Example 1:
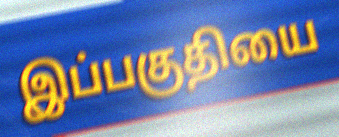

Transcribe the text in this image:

இப்பகுதியை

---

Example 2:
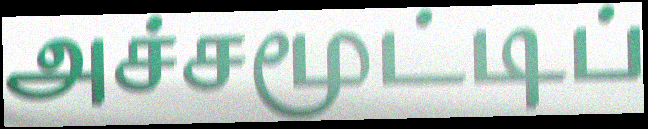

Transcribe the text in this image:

அச்சமூட்டிப்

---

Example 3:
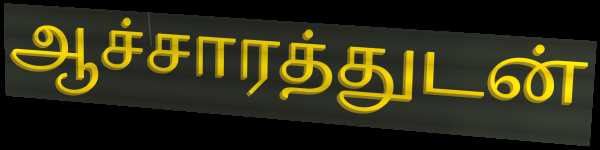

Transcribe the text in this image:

ஆச்சாரத்துடன்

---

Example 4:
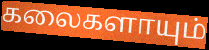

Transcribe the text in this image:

கலைகளாயும்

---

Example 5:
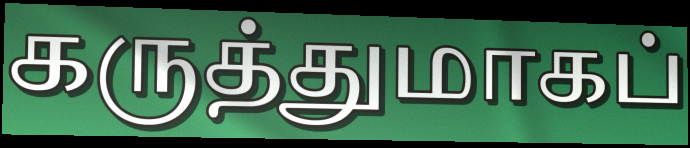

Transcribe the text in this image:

கருத்துமாகப்